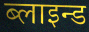
ब्लाइन्ड